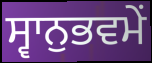
ਸ੍ਵਾਨੁਭਵਮੇਂ